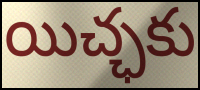
యిచ్ఛకు